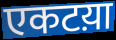
एकटय़ा